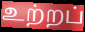
உற்றப்